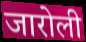
जारोली